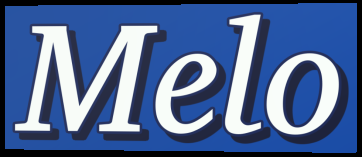
Melo